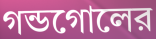
গন্ডগোলের